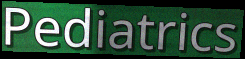
Pediatrics